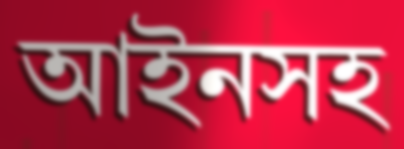
আইনসহ